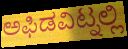
ಅಫಿಡವಿಟ್ನಲ್ಲಿ